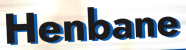
Henbane